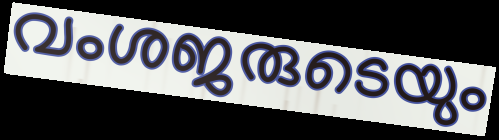
വംശജരുടെയും